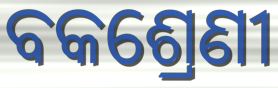
ବକଶ୍ରେଣୀ